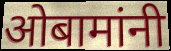
ओबामांनी